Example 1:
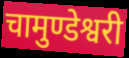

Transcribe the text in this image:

चामुण्डेश्वरी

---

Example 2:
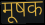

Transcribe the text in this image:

मूषक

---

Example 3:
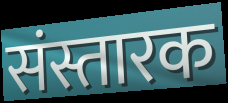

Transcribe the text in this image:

संस्तारक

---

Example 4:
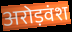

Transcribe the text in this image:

अरोड़वंश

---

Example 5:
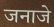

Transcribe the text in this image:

जनाजे